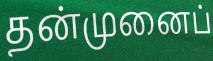
தன்முனைப்